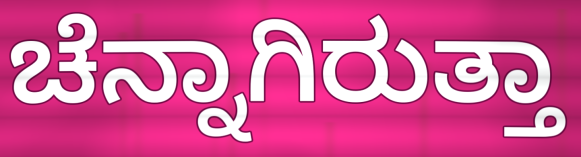
ಚೆನ್ನಾಗಿರುತ್ತಾ